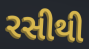
રસીથી